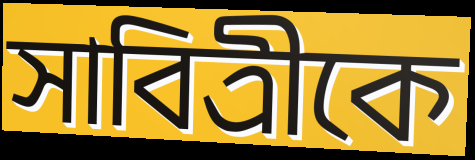
সাবিত্রীকে